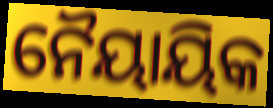
ନୈୟାୟିକ